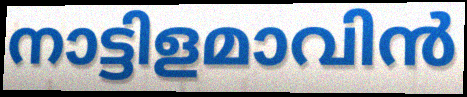
നാട്ടിളമാവിൻ